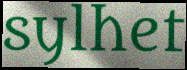
sylhet